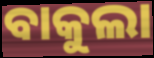
ବାକୁଲା